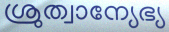
ശ്രുത്വാന്യേഭ്യ